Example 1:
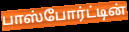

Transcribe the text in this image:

பாஸ்போர்ட்டின்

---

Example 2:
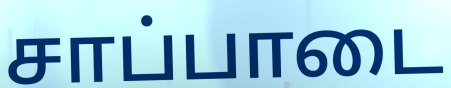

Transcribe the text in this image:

சாப்பாடை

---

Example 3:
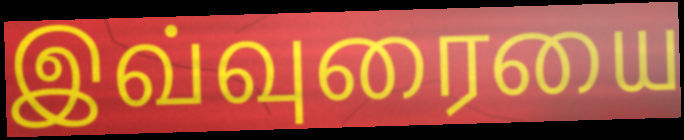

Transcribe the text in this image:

இவ்வுரையை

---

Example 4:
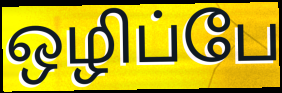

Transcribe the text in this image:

ஒழிப்பே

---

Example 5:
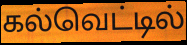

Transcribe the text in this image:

கல்வெட்டில்